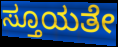
ಸ್ತೂಯತೇ